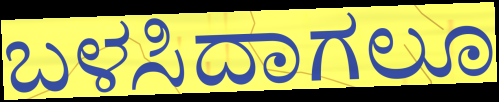
ಬಳಸಿದಾಗಲೂ